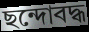
ছন্দোবদ্ধ